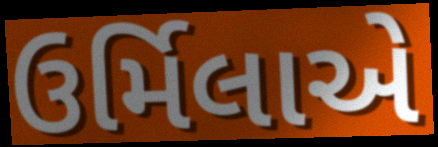
ઉર્મિલાએ